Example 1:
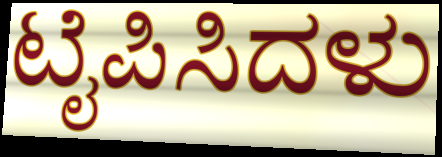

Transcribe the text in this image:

ಟೈಪಿಸಿದಳು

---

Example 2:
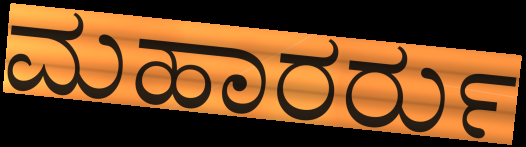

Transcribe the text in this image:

ಮಹಾರರ್ರು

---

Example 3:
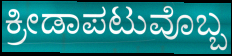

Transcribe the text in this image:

ಕ್ರೀಡಾಪಟುವೊಬ್ಬ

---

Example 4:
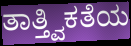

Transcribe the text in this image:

ತಾತ್ತ್ವಿಕತೆಯ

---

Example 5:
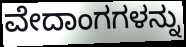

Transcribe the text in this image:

ವೇದಾಂಗಗಳನ್ನು